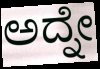
ಅದ್ನೇ